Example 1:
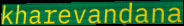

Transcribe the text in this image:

kharevandana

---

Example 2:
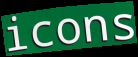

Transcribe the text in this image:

icons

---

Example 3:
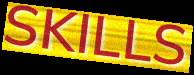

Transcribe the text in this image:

SKILLS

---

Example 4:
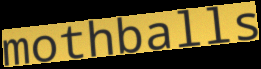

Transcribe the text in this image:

mothballs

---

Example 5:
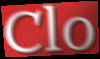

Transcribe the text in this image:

Clo